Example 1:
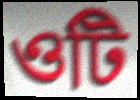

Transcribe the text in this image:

ওটি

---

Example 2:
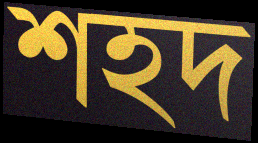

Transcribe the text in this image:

শহদ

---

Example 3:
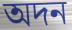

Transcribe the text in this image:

অদন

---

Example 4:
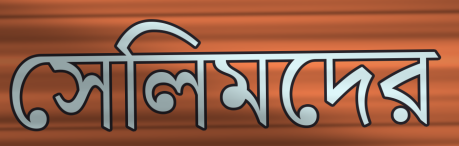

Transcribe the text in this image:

সেলিমদের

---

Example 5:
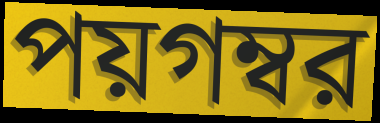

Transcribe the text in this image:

পয়গম্বর